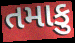
તમાકુ